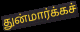
துன்மார்க்கச்